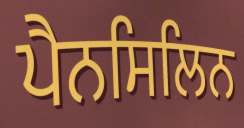
ਪੈਨਸਿਲਿਨ